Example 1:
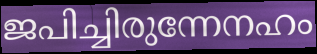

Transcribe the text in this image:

ജപിച്ചിരുന്നേനഹം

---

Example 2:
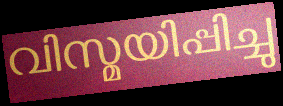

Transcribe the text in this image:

വിസ്മയിപ്പിച്ചു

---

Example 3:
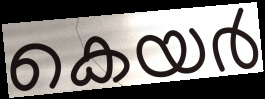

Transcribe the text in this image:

കെയർ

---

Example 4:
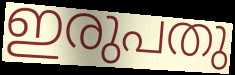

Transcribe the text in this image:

ഇരുപതു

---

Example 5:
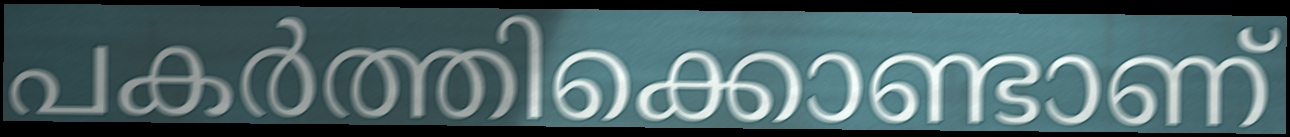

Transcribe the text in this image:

പകർത്തിക്കൊണ്ടാണ്